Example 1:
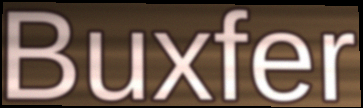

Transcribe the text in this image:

Buxfer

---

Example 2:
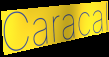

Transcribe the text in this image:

Caracal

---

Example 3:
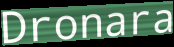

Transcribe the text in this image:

Dronara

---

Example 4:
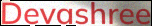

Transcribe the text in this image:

Devashree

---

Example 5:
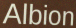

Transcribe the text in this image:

Albion